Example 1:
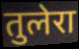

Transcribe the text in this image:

तुलेरा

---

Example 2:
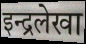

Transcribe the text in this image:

इन्द्रलेखा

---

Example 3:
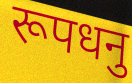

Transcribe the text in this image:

रूपधनु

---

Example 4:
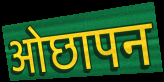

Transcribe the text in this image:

ओछापन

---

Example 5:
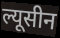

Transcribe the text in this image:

ल्यूसीन